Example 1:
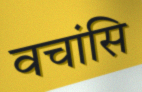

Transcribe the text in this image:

वचांसि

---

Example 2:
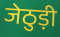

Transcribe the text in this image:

जेठुड़ी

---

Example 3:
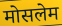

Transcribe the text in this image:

मोसलेम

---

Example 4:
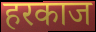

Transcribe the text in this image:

हरकाज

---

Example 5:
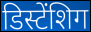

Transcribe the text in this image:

डिस्टेंशिग